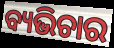
ବ୍ୟଭିଚାର